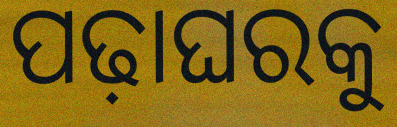
ପଢ଼ାଘରକୁ